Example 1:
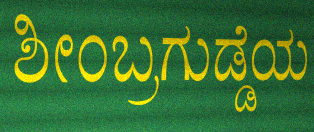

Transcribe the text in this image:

ಶೀಂಬ್ರಗುಡ್ಡೆಯ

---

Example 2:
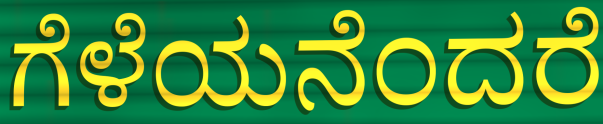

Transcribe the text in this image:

ಗೆಳೆಯನೆಂದರೆ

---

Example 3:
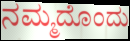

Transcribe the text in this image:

ನಮ್ಮದೊಂದು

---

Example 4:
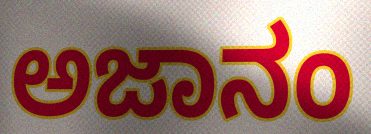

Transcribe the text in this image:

ಅಜಾನಂ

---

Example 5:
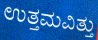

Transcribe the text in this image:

ಉತ್ತಮವಿತ್ತು